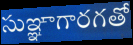
సుఞ్ఞాగారగతో